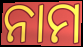
ନାମ